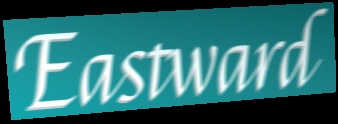
Eastward